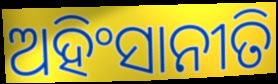
ଅହିଂସାନୀତି